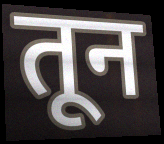
तून